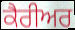
ਕੈਰੀਅਰ